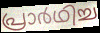
പ്രാർഥിച്ച